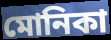
মোনিকা